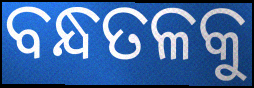
ବନ୍ଧତଳକୁ